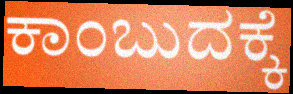
ಕಾಂಬುದಕ್ಕೆ